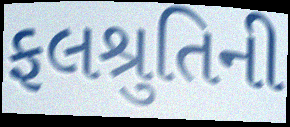
ફલશ્રુતિની